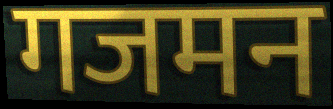
गजमन